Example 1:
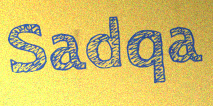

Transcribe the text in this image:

Sadqa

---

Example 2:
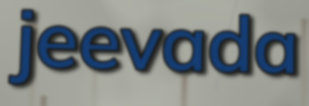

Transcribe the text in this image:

jeevada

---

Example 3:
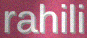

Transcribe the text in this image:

rahili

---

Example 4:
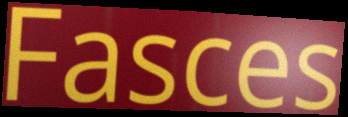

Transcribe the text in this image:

Fasces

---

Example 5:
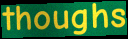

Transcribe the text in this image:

thoughs